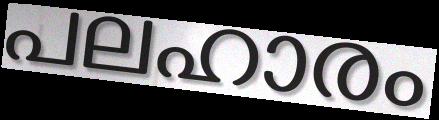
പലഹാരം